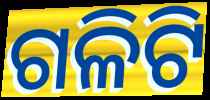
ଗଳିଟି